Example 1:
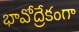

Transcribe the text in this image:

భావోద్రేకంగా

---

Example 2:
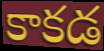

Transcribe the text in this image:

కాకడ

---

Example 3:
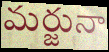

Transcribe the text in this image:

మర్జునా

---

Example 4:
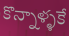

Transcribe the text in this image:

కొన్నాళ్ళకే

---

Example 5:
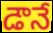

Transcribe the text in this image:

డౌనే